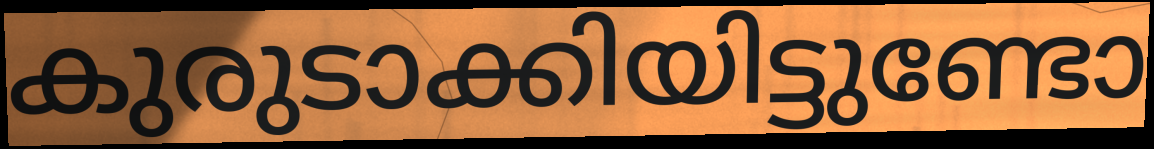
കുരുടാക്കിയിട്ടുണ്ടോ